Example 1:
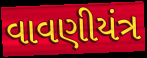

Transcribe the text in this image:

વાવણીયંત્ર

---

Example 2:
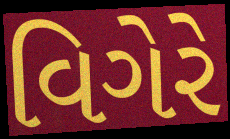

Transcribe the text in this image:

વિગેરે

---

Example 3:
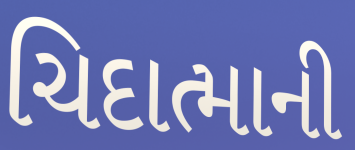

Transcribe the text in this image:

ચિદાત્માની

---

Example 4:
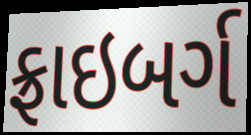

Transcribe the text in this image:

ફ્રાઇબર્ગ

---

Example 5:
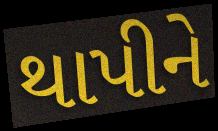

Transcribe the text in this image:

થાપીને